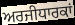
ਅਰਜੀਧਾਰਕਾਂ